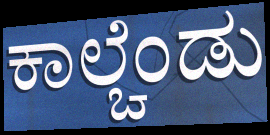
ಕಾಲ್ಚೆಂಡು